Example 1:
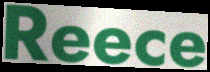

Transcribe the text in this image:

Reece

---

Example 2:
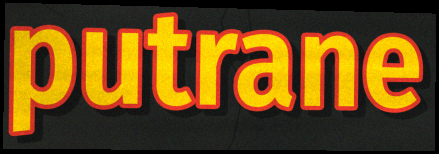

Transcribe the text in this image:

putrane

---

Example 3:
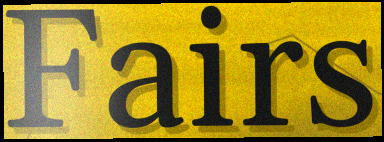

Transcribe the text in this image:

Fairs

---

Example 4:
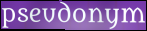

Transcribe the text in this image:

pseudonym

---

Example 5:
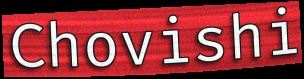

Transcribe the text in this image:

Chovishi